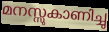
മനസ്സുകാണിച്ചു